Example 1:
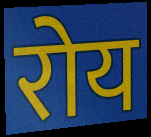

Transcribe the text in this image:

रोय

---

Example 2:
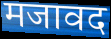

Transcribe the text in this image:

मजावद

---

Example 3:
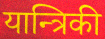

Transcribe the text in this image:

यान्त्रिकी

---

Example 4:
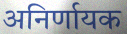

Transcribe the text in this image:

अनिर्णायक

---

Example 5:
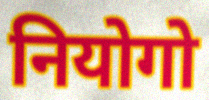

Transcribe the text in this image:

नियोगो